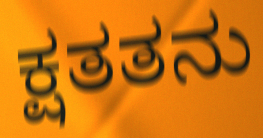
ಕ್ಷತತನು